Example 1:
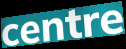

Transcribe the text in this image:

centre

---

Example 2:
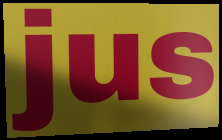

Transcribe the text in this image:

jus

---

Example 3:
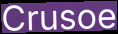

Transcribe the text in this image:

Crusoe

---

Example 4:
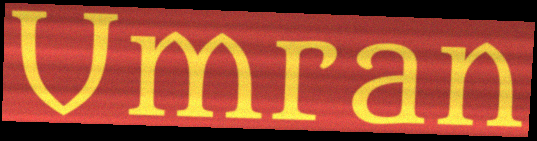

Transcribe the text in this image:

Umran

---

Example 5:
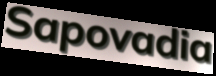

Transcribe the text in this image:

Sapovadia